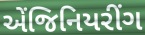
એંજિનિયરીંગ